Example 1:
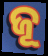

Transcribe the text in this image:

ଜୂ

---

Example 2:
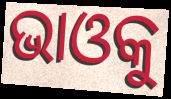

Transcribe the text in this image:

ଭାଓକୁ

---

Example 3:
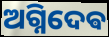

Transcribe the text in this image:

ଅଗ୍ନିଦେଵ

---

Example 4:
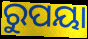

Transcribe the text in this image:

ରୁପୟା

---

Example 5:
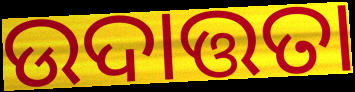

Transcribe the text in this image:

ଉଦାତ୍ତତା